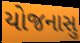
યોજનાસુ